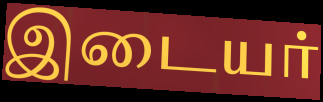
இடையர்